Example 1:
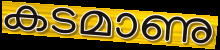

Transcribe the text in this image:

കടമാണു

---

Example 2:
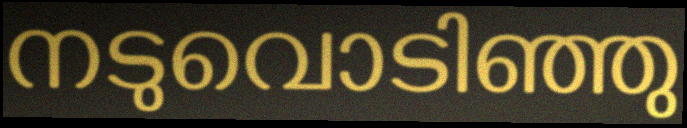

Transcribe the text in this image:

നടുവൊടിഞ്ഞു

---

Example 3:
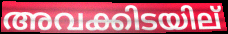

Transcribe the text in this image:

അവക്കിടയില്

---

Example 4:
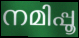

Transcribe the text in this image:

നമിപ്പൂ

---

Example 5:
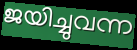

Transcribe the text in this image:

ജയിച്ചുവന്ന